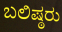
ಬಲಿಷ್ಠರು